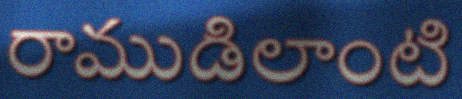
రాముడిలాంటి